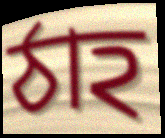
ঠাহ